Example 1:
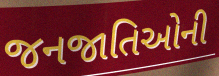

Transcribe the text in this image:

જનજાતિઓની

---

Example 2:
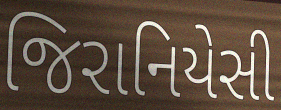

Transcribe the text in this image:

જિરાનિયેસી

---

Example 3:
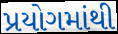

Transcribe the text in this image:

પ્રયોગમાંથી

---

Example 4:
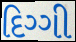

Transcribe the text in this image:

દિગ્ગી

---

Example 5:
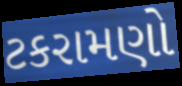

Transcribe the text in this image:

ટકરામણો